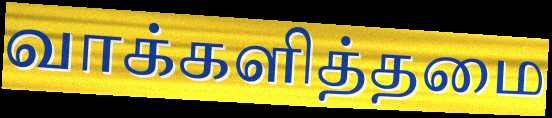
வாக்களித்தமை